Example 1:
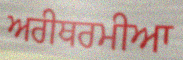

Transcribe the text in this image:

ਅਰੀਥਰਮੀਆ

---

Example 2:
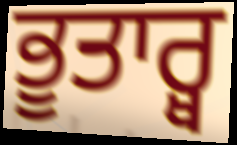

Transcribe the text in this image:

ਭੂਤਾਰ੍ਥ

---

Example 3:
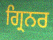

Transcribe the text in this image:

ਗ੍ਰਿਨਰ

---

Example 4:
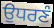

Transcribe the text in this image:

ਉਧਰਣੰ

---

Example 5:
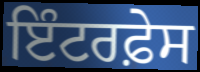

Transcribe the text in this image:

ਇੰਟਰਫ਼ੇਸ